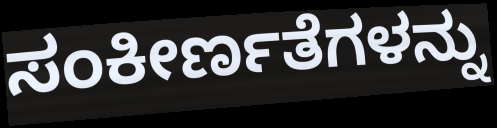
ಸಂಕೀರ್ಣತೆಗಳನ್ನು